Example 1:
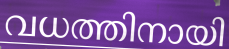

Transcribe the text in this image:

വധത്തിനായി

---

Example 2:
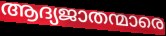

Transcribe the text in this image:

ആദ്യജാതന്മാരെ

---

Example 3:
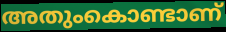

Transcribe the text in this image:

അതുംകൊണ്ടാണ്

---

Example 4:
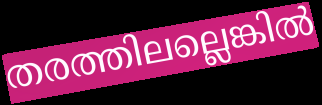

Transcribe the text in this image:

തരത്തിലല്ലെങ്കിൽ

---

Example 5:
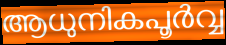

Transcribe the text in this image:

ആധുനികപൂർവ്വ